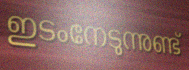
ഇടംനേടുന്നുണ്ട്